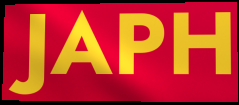
JAPH